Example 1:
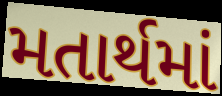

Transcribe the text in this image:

મતાર્થમાં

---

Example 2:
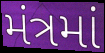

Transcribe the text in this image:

મંત્રમાં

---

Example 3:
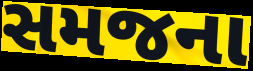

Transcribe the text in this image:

સમજના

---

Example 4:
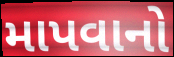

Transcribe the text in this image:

માપવાનો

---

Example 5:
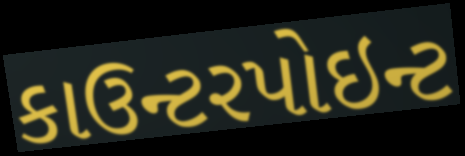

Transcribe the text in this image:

કાઉન્ટરપોઇન્ટ